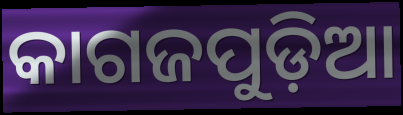
କାଗଜପୁଡ଼ିଆ